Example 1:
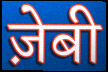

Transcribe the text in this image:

ज़ेबी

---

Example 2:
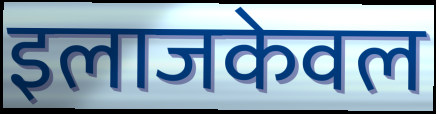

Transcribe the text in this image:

इलाजकेवल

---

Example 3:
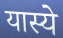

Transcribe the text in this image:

यास्ये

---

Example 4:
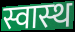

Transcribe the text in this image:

स्‍वास्‍थ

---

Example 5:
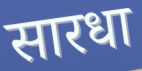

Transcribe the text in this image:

सारधा